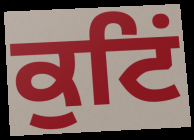
ਕੁਟਿਂ